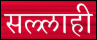
सल्लाही